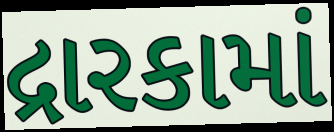
દ્રારકામાં